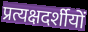
प्रत्यक्षदर्शीयों